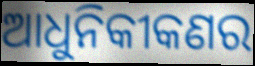
ଆଧୁନିକୀକଣର